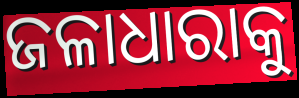
ଜଳାଧାରାକୁ